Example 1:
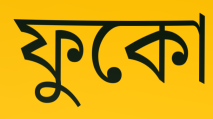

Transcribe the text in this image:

ফুকো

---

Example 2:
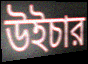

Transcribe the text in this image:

উইচার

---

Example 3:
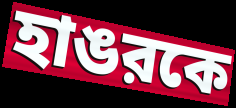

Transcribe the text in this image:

হাঙরকে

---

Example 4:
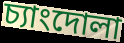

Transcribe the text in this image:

চ্যাংদোলা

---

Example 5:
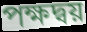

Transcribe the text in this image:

পক্ষদ্বয়